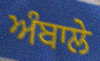
ਅੰਬਾਲੇ